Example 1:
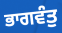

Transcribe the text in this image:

ਭਾਗਵੰਤੁ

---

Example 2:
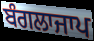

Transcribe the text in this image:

ਬੰਗਲਾਜਾਪ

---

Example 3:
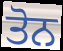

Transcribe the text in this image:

ਤੋਨ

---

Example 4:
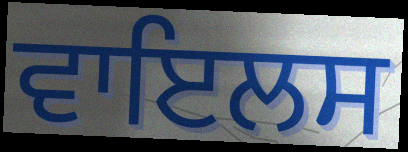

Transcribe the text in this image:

ਵਾਇਲਸ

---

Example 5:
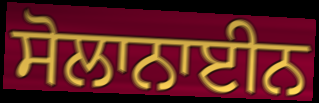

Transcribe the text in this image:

ਸੋਲਾਨਾਈਨ